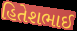
હિતેશભાઈ